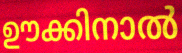
ഊക്കിനാൽ